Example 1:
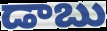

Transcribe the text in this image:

డాబు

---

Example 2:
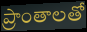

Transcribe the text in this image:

ప్రాంతాలతో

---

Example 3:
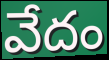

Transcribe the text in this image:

వేదం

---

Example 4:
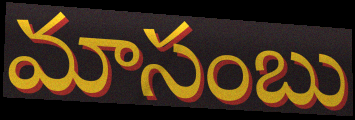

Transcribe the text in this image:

మాసంబు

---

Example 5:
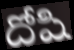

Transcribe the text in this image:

దోషి